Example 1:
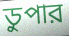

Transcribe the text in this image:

ডুপার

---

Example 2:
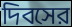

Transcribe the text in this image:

দিবসের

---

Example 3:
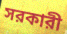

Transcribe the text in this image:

সরকারী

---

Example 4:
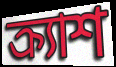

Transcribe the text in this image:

ক্র্যাশ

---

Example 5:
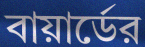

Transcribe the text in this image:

বায়ার্ডের